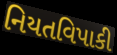
નિયતવિપાકી